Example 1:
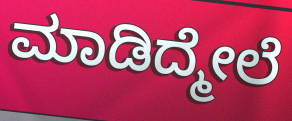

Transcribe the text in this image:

ಮಾಡಿದ್ಮೇಲೆ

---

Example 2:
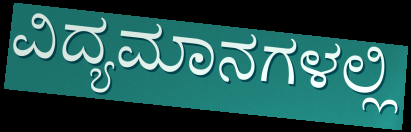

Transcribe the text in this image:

ವಿದ್ಯಮಾನಗಳಲ್ಲಿ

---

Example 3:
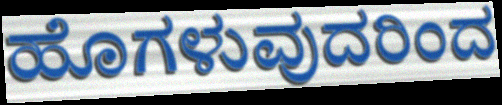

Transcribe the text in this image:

ಹೊಗಳುವುದರಿಂದ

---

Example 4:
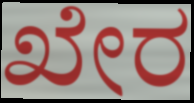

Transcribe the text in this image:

ಖೇರ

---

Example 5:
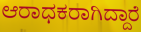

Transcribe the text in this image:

ಆರಾಧಕರಾಗಿದ್ದಾರೆ